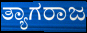
ತ್ಯಾಗರಾಜ